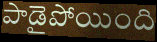
పాడైపోయింది